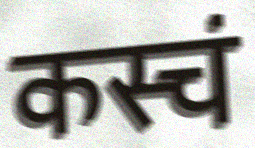
कस्चं